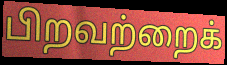
பிறவற்றைக்